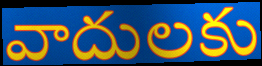
వాదులకు